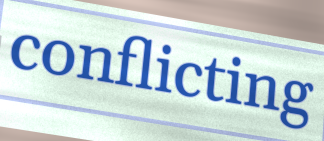
conflicting